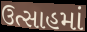
ઉત્સાહમાં